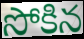
సోకిన